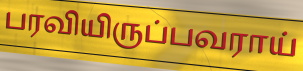
பரவியிருப்பவராய்